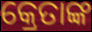
କ୍ରେତାଙ୍କ